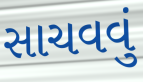
સાચવવું